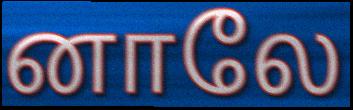
னாலே